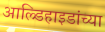
आल्डिहाइडांच्या